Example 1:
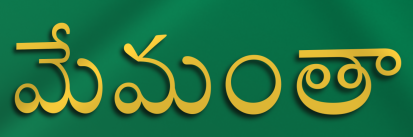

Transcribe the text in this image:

మేమంతా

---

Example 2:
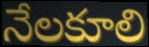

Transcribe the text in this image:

నేలకూలి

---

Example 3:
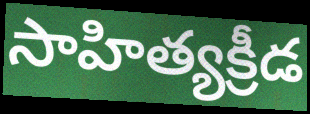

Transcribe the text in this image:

సాహిత్యక్రీడ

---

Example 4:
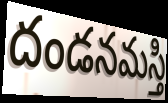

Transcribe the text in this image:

దండనమస్తి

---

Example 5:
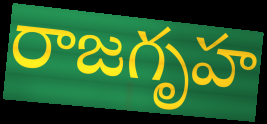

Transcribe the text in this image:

రాజగృహ